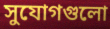
সুযোগগুলো